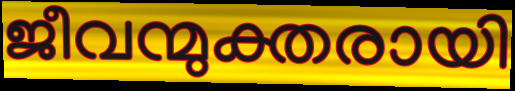
ജീവന്മുക്തരായി